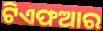
ଟିଏଫଆର